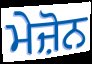
ਮੇਜ਼ੋਨ